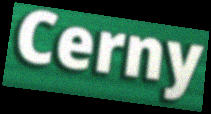
Cerny